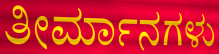
ತೀರ್ಮಾನಗಳು